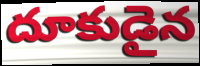
దూకుడైన